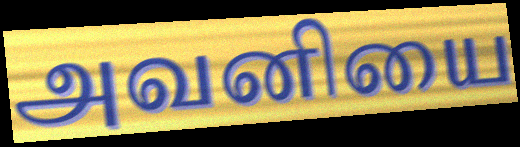
அவனியை